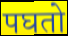
पघतो